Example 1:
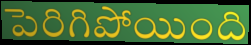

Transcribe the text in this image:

పెరిగిపోయింది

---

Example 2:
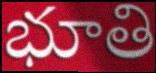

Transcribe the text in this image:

భూతి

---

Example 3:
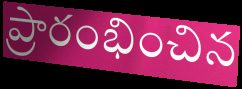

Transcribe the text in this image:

ప్రారంభించిన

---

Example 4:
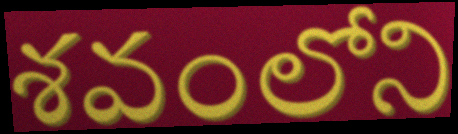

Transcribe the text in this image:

శవంలోని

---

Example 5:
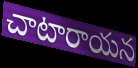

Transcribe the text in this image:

చాటారాయన